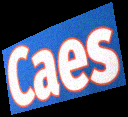
Caes